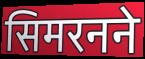
सिमरनने